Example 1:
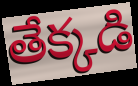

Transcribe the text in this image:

తేక్కడి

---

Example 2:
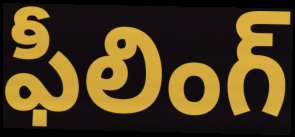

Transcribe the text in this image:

ఫీలింగ్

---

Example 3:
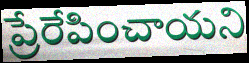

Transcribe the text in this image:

ప్రేరేపించాయని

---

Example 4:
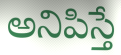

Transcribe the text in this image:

అనిపిస్తే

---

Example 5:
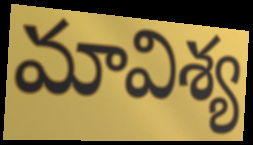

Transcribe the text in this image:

మావిశ్య